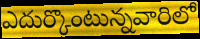
ఎదుర్కొంటున్నవారిలో